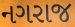
નગરાજ